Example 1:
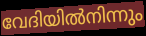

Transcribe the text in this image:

വേദിയിൽനിന്നും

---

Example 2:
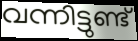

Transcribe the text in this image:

വന്നിട്ടുണ്ട്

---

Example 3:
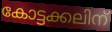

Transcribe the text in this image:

കോട്ടക്കലിന്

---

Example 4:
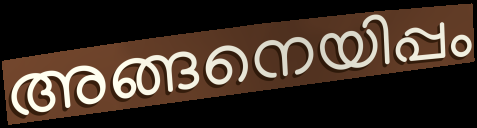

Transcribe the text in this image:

അങ്ങനെയിപ്പം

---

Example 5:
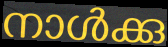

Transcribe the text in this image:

നാൾക്കു